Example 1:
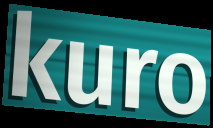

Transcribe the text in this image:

kuro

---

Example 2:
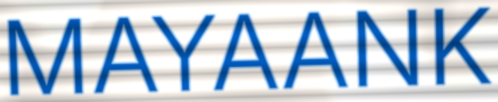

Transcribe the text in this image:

MAYAANK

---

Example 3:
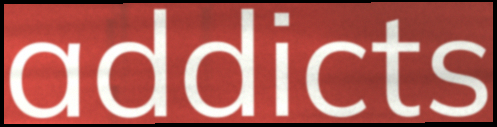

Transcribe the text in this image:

addicts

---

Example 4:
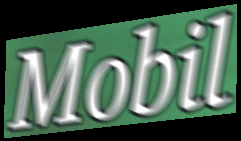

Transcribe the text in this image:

Mobil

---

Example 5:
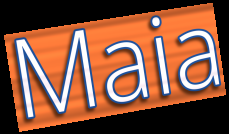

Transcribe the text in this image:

Maia